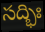
సద్భిః